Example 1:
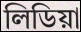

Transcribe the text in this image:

লিডিয়া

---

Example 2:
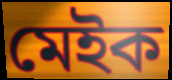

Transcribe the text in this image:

মেইক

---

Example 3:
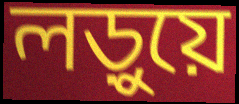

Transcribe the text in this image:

লড়ুয়ে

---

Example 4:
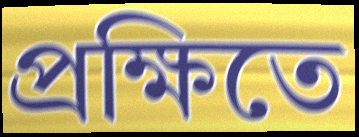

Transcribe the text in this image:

প্রক্ষিতে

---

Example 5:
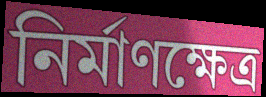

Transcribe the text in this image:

নির্মাণক্ষেত্র